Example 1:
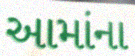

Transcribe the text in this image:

આમાંના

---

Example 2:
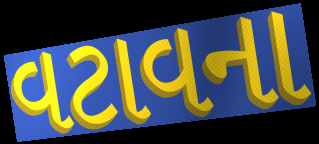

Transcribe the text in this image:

વટાવના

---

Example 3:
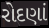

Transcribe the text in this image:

રોદણાં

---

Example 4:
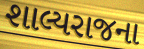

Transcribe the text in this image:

શાલ્યરાજના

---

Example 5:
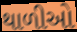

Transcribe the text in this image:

થાળીઓ